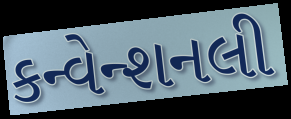
કન્વેન્શનલી